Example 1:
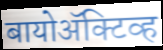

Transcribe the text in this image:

बायोॲक्टिव्ह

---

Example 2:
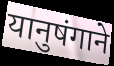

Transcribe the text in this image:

यानुषंगाने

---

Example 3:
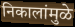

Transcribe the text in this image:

निकालांमुळे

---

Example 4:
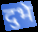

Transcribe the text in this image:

दुभे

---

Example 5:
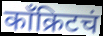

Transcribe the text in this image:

काँक्रिटचं